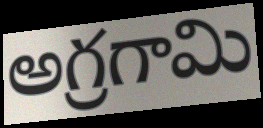
అగ్రగామి